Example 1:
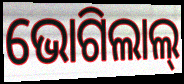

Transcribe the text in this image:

ଭୋଗିଲାଲ୍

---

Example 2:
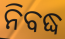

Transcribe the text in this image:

ନିବଦ୍ଧ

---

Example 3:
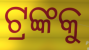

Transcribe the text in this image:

ଟ୍ରଙ୍କକୁ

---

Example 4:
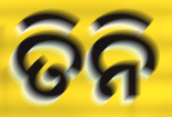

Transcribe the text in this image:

ତିନି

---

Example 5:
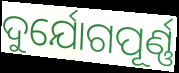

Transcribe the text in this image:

ଦୁର୍ଯୋଗପୂର୍ଣ୍ଣ